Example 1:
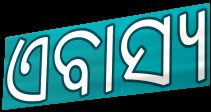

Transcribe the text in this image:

ଏବାସ୍ୟ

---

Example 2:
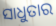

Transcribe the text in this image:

ସାଧୁତାର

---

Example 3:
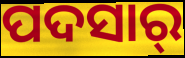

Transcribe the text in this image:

ପଦସାର୍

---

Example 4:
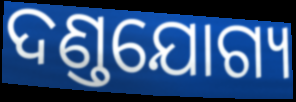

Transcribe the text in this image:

ଦଣ୍ଡଯୋଗ୍ୟ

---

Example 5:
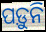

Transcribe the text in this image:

ପଡ଼ୁନି